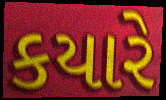
કયારે